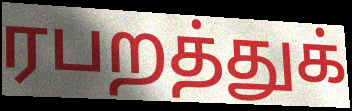
ரபறத்துக்